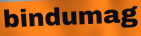
bindumag